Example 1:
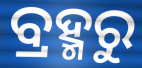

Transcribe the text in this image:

ବ୍ରହ୍ମରୁ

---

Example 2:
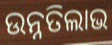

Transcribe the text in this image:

ଉନ୍ନତିଲାଭ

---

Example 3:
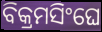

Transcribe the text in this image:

ବିକ୍ରମସିଂଘେ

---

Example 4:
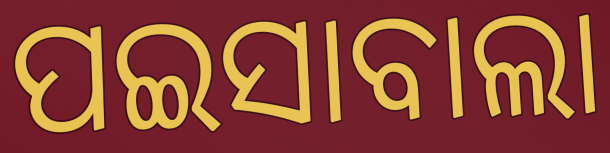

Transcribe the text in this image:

ପଇସାବାଲା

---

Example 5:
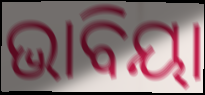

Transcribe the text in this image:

ଭାବିୟା